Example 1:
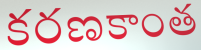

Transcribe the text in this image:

కరణకాంత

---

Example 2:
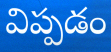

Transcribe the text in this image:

విప్పడం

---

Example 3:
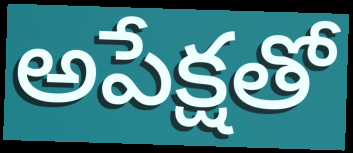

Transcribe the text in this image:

అపేక్షతో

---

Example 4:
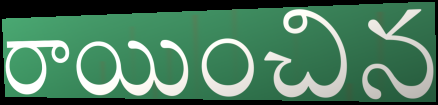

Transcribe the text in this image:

రాయించిన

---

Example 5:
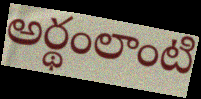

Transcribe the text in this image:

అర్థంలాంటి